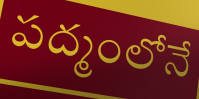
పద్మంలోనే